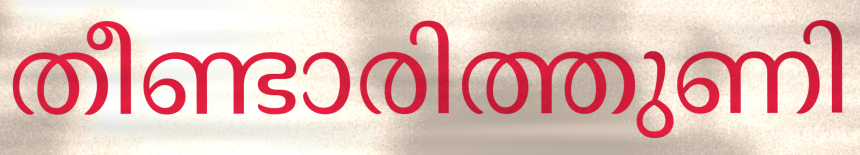
തീണ്ടാരിത്തുണി